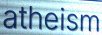
atheism